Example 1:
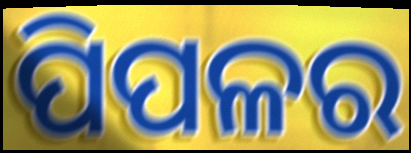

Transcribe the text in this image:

ପିପଳର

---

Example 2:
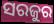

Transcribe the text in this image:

ସରଜୁର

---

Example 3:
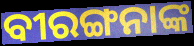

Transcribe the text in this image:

ବୀରଙ୍ଗନାଙ୍କ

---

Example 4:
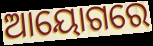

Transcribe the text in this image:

ଆୟୋଗରେ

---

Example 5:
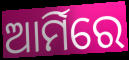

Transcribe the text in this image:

ଆର୍ମିରେ